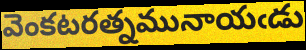
వెంకటరత్నమునాయఁడు